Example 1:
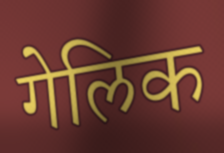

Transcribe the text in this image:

गेलिक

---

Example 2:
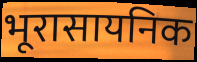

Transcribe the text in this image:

भूरासायनिक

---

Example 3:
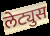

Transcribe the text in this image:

लेट्युस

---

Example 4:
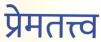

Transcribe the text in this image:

प्रेमतत्त्व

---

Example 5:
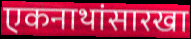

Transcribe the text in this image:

एकनाथांसारखा